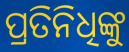
ପ୍ରତିନିଧିଙ୍କୁ